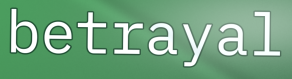
betrayal